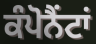
ਕੰਪੋਨੈਂਟਾਂ